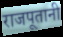
राजपूतानी